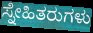
ಸ್ನೇಹಿತರುಗಳು